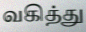
வகித்து